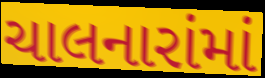
ચાલનારાંમાં